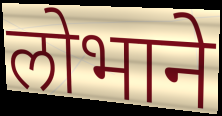
लोभाने